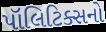
પૉલિટિક્સનો